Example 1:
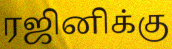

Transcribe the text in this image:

ரஜினிக்கு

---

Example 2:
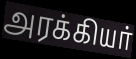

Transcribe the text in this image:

அரக்கியர்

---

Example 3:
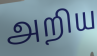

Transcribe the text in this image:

அறிய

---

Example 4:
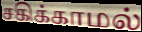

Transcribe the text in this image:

சகிக்காமல்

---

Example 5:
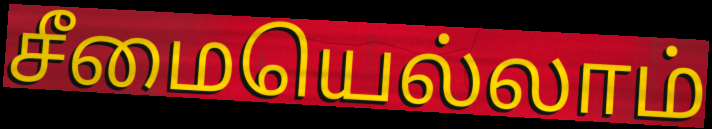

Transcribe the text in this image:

சீமையெல்லாம்